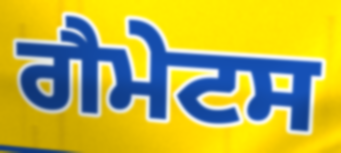
ਗੈਮੇਟਸ